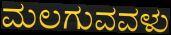
ಮಲಗುವವಳು